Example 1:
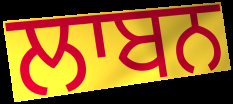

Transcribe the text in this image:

ਲਾਬਨ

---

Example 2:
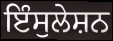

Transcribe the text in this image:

ਇੰਸੁਲੇਸ਼ਨ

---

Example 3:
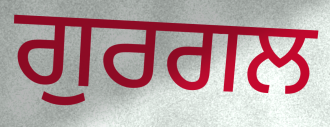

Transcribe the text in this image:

ਗੁਰਗਲ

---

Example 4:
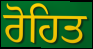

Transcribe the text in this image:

ਰੋਹਿਤ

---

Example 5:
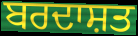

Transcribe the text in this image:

ਬਰਦਾਸ਼ਤ